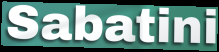
Sabatini